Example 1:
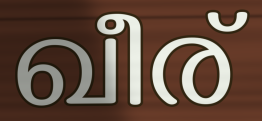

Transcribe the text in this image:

ഖീര്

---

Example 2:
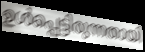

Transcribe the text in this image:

ഉൾപ്പെട്ടിരുന്നതായി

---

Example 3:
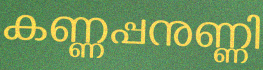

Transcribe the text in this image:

കണ്ണപ്പനുണ്ണി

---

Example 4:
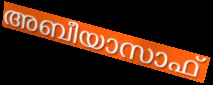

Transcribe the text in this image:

അബീയാസാഫ്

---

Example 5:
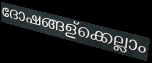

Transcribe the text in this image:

ദോഷങ്ങള്ക്കെല്ലാം